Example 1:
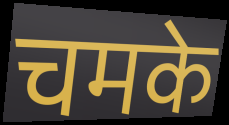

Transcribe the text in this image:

चमके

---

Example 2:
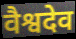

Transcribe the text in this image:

वैश्वदेव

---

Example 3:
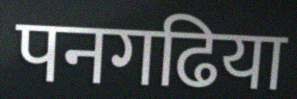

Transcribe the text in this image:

पनगढिया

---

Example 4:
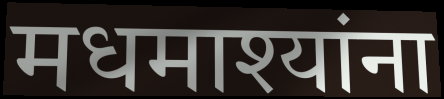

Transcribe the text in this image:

मधमाश्यांना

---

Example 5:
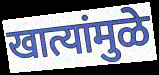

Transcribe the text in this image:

खात्यांमुळे